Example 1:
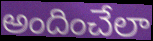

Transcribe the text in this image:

అందించేలా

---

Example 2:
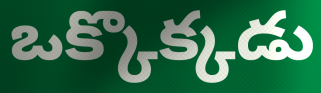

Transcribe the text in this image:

ఒక్కొక్కడు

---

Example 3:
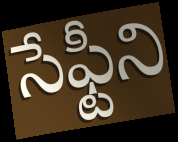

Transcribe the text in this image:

సేఫ్టీని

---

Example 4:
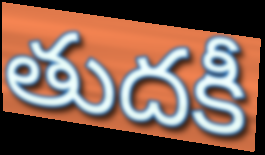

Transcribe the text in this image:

తుదకీ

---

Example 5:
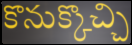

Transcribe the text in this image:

కొనుక్కొచ్చి